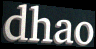
dhao